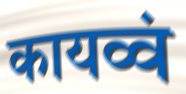
कायव्वं